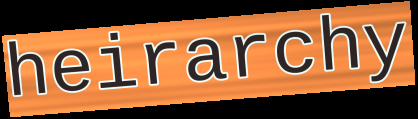
heirarchy